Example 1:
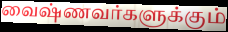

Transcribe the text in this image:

வைஷ்ணவர்களுக்கும்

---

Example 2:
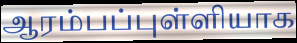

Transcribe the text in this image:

ஆரம்பப்புள்ளியாக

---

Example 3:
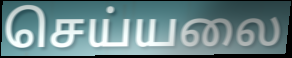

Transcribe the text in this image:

செய்யலை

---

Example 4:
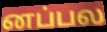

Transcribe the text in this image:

னப்பல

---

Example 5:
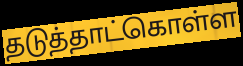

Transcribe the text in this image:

தடுத்தாட்கொள்ள